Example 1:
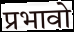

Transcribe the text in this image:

प्रभावो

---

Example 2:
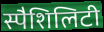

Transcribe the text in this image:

स्पैशिलिटी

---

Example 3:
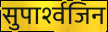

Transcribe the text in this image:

सुपार्श्वजिन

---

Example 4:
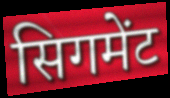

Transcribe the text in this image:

सिगमेंट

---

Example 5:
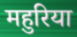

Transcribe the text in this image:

महुरिया